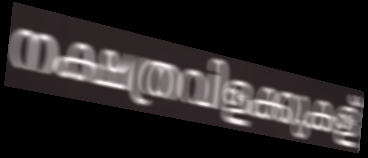
നക്ഷത്രവിളക്കുകള്